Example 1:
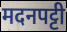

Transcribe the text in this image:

मदनपट्टी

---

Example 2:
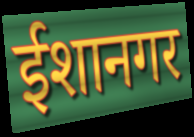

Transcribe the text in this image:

ईशानगर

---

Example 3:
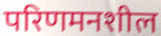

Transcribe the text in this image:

परिणमनशील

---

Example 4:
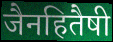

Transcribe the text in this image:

जैनहितैषी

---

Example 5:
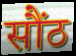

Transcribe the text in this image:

सौंठ